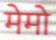
मेमो